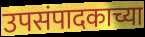
उपसंपादकाच्या